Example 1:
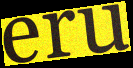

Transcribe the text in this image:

eru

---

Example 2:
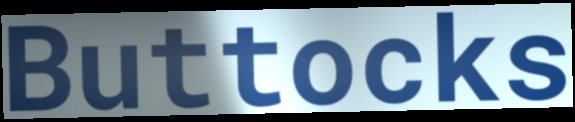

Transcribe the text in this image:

Buttocks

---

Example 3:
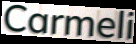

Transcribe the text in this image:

Carmeli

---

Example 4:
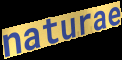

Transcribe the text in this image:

naturae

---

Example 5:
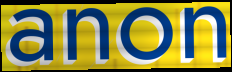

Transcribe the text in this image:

anon